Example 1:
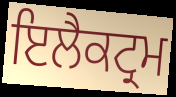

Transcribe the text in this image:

ਇਲੈਕਟ੍ਰਮ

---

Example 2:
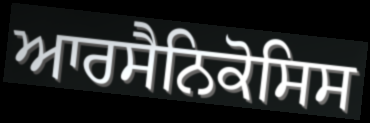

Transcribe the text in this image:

ਆਰਸੈਨਿਕੋਸਿਸ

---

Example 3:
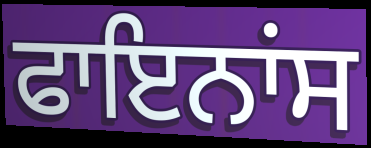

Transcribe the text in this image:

ਫਾਇਨਾਂਸ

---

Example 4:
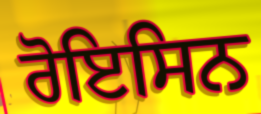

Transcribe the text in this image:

ਰੋਇਸਿਨ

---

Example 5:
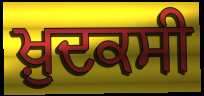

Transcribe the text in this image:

ਖ਼ੁਦਕਸੀ